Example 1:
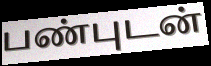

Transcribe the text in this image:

பண்புடன்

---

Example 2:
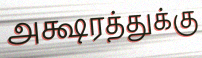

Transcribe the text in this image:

அக்ஷரத்துக்கு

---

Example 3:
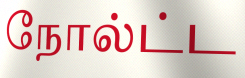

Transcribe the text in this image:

நோல்ட்ட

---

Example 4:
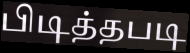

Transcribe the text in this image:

பிடித்தபடி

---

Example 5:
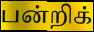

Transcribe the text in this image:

பன்றிக்